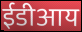
ईडीआय